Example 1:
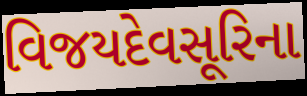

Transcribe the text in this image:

વિજયદેવસૂરિના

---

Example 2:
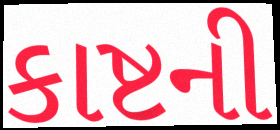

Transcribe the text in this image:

કાષ્ટની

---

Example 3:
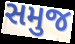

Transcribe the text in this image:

સમુજ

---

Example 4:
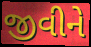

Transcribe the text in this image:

જીવીને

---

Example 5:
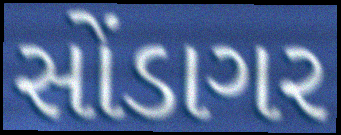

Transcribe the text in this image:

સોંડાગર